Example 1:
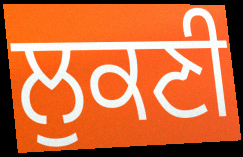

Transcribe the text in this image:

ਲੁਕਣੀ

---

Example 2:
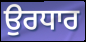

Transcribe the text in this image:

ਉਰਧਾਰ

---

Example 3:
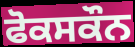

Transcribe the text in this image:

ਫੋਕਸਕੌਨ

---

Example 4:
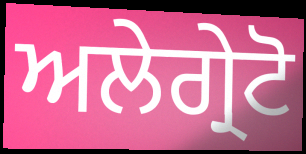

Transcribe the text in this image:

ਅਲੇਗ੍ਰੇਟੋ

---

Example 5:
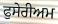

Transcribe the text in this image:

ਫੁਸੇਰੀਅਮ